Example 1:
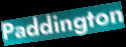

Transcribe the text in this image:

Paddington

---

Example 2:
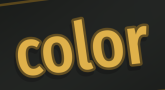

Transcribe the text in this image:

color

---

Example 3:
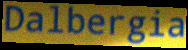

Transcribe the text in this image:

Dalbergia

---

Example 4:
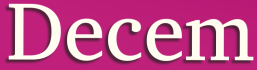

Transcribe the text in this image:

Decem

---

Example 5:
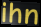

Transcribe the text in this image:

ihn